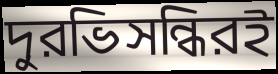
দুরভিসন্ধিরই